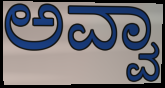
ಅವ್ವಾ